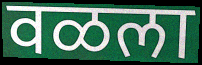
वळला